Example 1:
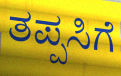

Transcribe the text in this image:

ತಪ್ಪಸಿಗೆ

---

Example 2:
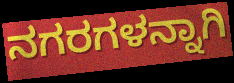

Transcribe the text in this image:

ನಗರಗಳನ್ನಾಗಿ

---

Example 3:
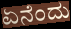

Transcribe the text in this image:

ಏನೆಂದು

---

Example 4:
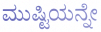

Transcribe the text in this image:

ಮುಷ್ಟಿಯನ್ನೇ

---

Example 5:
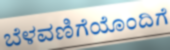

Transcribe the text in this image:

ಬೆಳವಣಿಗೆಯೊಂದಿಗೆ